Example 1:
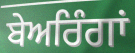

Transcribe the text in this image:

ਬੇਅਰਿੰਗਾਂ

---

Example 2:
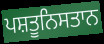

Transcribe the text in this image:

ਪਸ਼ਤੂਨਿਸਤਾਨ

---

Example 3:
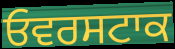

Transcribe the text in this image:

ਓਵਰਸਟਾਕ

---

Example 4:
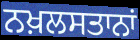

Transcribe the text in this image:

ਨਖ਼ਲਸਤਾਨਾਂ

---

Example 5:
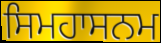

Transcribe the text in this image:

ਸਿਮਹਾਸਨਮ